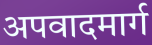
अपवादमार्ग